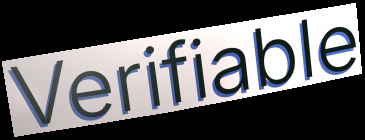
Verifiable